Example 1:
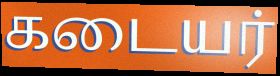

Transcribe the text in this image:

கடையர்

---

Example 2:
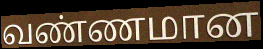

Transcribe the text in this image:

வண்ணமான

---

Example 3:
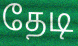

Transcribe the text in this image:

தேடி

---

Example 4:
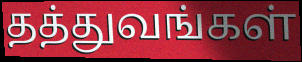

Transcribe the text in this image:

தத்துவங்கள்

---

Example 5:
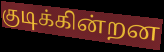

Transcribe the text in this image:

குடிக்கின்றன